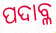
ପଦାବ୍ଳ